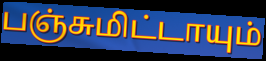
பஞ்சுமிட்டாயும்